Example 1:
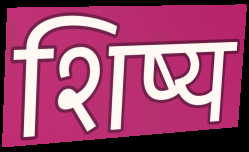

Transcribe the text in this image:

शिष्य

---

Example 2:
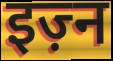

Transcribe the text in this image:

इज़्न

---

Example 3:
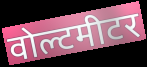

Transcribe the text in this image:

वोल्टमीटर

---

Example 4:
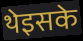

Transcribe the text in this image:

थेइसके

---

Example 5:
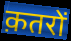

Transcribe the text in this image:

क़तरों